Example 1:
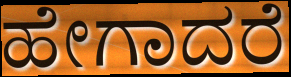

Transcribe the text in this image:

ಹೇಗಾದರೆ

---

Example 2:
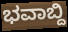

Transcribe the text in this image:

ಭವಾಬ್ದಿ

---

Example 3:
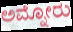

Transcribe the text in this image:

ಅಮ್ನೋರು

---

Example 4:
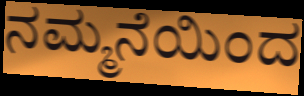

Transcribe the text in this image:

ನಮ್ಮನೆಯಿಂದ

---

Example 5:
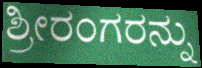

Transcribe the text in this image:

ಶ್ರೀರಂಗರನ್ನು